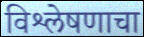
विश्लेषणाचा